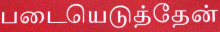
படையெடுத்தேன்